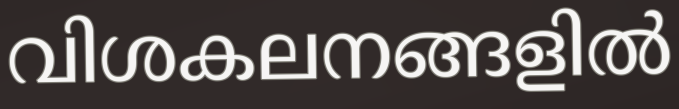
വിശകലനങ്ങളിൽ